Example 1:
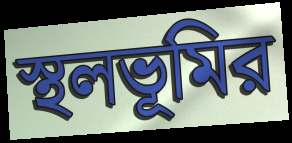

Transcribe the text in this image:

স্থলভূমির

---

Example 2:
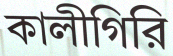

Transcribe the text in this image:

কালীগিরি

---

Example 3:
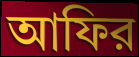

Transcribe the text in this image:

আফির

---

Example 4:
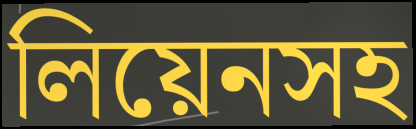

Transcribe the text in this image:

লিয়েনসহ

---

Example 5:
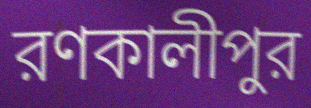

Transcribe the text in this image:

রণকালীপুর